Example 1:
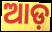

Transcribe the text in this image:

ଆଡ଼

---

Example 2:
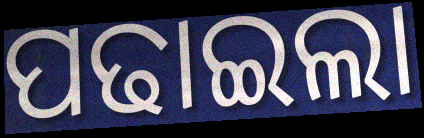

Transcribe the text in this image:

ପଢାଇଲା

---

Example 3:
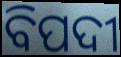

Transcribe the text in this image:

ବିପଦୀ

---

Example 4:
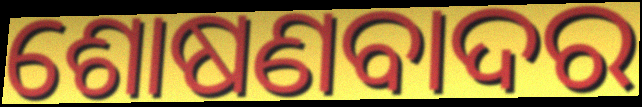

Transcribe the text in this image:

ଶୋଷଣବାଦର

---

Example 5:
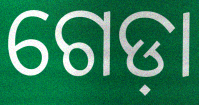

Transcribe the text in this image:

ଗେଡ଼ା